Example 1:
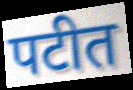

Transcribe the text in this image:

पटीत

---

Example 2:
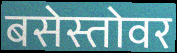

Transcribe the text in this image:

बसेस्तोवर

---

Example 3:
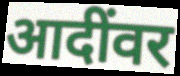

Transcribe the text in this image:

आदींवर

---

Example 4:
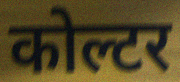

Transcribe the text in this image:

कोल्टर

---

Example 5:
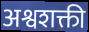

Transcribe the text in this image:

अश्वशक्ती